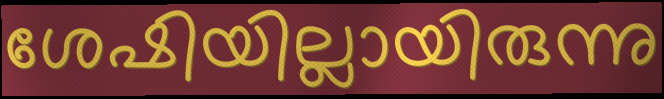
ശേഷിയില്ലായിരുന്നു